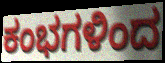
ಕಂಭಗಳಿಂದ